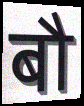
बौ